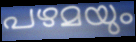
പഴമയും